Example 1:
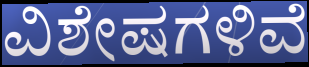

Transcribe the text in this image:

ವಿಶೇಷಗಳಿವೆ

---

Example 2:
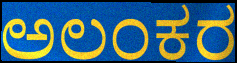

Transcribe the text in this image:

ಅಲಂಕರ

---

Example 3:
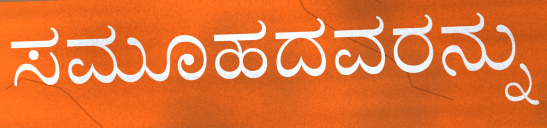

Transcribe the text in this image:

ಸಮೂಹದವರನ್ನು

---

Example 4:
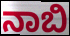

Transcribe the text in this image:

ನಾಬಿ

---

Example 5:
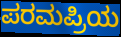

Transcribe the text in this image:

ಪರಮಪ್ರಿಯ